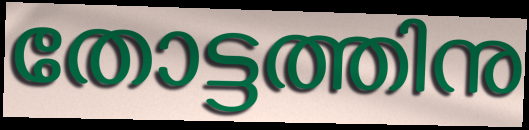
തോട്ടത്തിനു